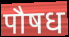
पौषध